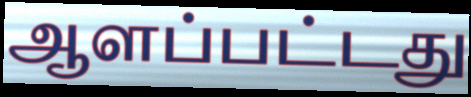
ஆளப்பட்டது